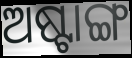
ଅଷ୍ଟାଙ୍ଗ